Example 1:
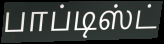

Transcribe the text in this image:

பாப்டிஸ்ட்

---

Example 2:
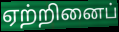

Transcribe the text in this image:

ஏற்றினைப்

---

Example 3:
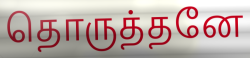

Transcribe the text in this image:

தொருத்தனே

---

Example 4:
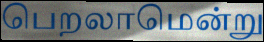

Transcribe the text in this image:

பெறலாமென்று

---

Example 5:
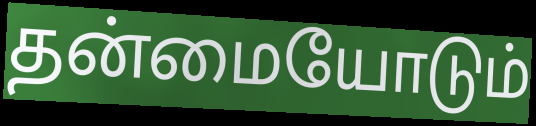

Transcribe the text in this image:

தன்மையோடும்